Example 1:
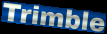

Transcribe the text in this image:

Trimble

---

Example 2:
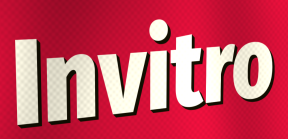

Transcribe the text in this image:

Invitro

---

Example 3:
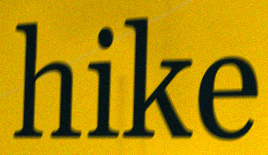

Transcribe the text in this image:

hike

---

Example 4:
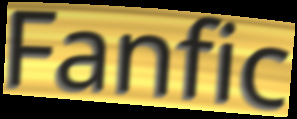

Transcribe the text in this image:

Fanfic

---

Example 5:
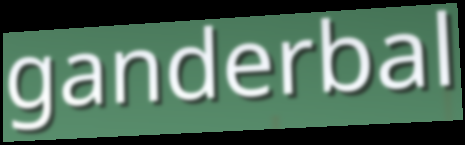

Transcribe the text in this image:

ganderbal